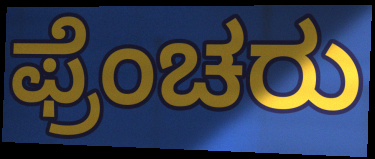
ಫ್ರೆಂಚರು